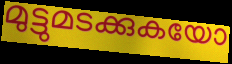
മുട്ടുമടക്കുകയോ